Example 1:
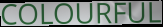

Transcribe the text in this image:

COLOURFUL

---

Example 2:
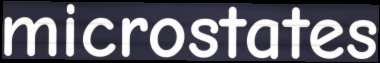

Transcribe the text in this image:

microstates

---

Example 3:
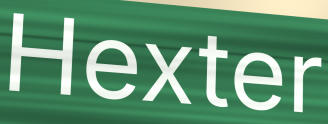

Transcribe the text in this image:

Hexter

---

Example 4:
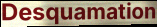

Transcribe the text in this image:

Desquamation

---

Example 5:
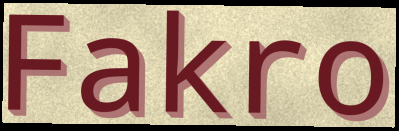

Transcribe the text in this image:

Fakro